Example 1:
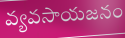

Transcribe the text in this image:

వ్యవసాయజనం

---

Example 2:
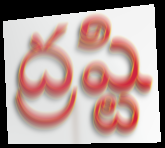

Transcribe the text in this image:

ద్రష్టి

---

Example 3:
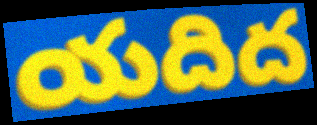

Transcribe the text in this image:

యదిద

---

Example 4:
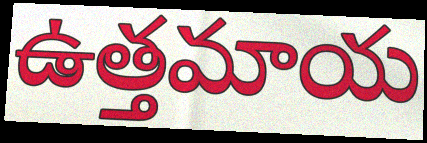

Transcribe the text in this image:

ఉత్తమాయ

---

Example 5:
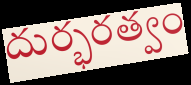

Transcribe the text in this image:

దుర్భరత్వం